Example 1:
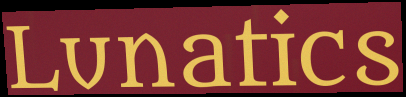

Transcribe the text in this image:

Lunatics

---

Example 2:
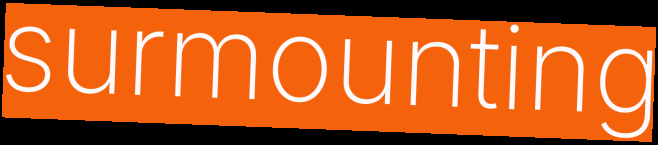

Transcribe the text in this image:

surmounting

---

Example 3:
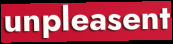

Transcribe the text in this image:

unpleasent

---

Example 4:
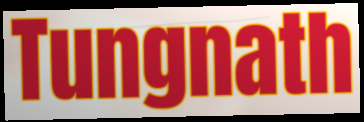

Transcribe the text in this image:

Tungnath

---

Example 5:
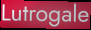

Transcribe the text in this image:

Lutrogale